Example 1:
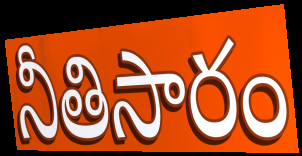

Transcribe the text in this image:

నీతిసారం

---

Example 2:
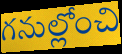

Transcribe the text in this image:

గనుల్లోంచి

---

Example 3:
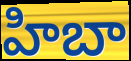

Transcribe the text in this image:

హిబా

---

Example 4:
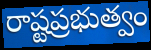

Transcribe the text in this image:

రాష్టప్రభుత్వం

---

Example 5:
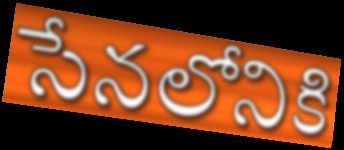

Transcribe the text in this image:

సేనలోనికి